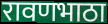
रावणभाठा